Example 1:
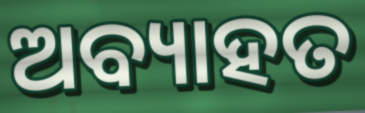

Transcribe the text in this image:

ଅବ୍ୟାହତ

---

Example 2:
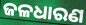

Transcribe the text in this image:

ଜଳଧାରଣ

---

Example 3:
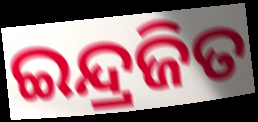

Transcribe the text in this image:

ଇନ୍ଦ୍ରଜିତ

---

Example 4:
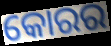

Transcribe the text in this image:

କୋରର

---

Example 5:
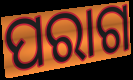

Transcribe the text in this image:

ପରାଗ